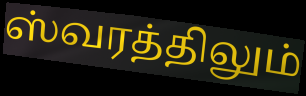
ஸ்வரத்திலும்